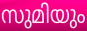
സുമിയും